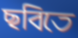
ছবিতে